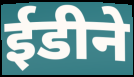
ईडीने